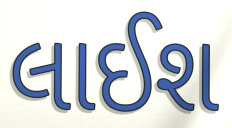
લાઈશ